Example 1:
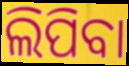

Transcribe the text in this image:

ଲିପିବା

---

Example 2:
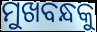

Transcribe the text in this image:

ମୁଖବନ୍ଧକୁ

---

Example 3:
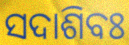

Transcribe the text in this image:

ସଦାଶିବଃ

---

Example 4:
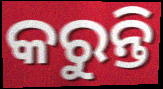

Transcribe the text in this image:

କରୁନ୍ତି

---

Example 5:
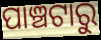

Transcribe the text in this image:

ପାଞ୍ଚଟାରୁ